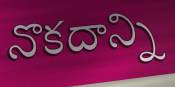
నొకదాన్ని